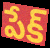
పేక్